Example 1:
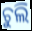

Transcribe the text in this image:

ଚୁଲି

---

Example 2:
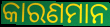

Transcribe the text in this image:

କାରଣମାନ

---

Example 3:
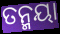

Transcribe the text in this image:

ତନ୍ମୟା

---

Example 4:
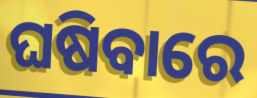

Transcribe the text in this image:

ଘଷିବାରେ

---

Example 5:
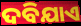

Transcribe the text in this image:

ଦବିଯାଏ